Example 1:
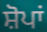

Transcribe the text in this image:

ਸ਼ੋਪਾਂ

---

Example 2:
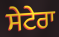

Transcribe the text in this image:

ਸੇਟੇਰਾ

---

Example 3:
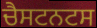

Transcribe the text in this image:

ਚੈਸਟਨਟਸ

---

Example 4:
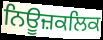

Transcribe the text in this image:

ਨਿਊਜ਼ਕਲਿਕ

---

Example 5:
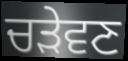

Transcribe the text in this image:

ਚੜੇਵਣ